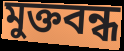
মুক্তবন্ধ